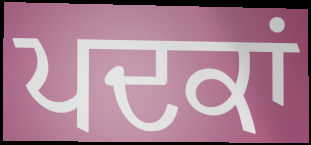
ਪਦਕਾਂ